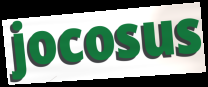
jocosus